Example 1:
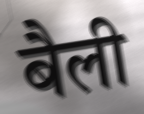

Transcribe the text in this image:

बैली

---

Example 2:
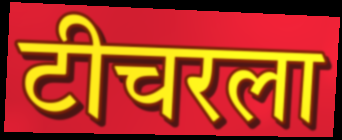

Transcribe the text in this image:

टीचरला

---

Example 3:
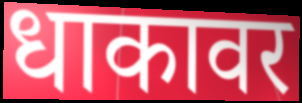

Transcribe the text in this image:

धाकावर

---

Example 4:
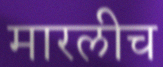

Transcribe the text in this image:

मारलीच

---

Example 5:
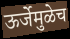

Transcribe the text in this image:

ऊर्जेमुळेच